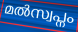
മൽസ്വപ്നം